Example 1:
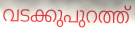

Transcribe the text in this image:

വടക്കുപുറത്ത്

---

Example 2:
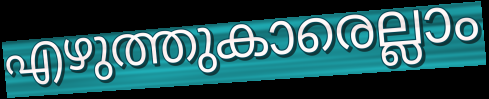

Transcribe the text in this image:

എഴുത്തുകാരെല്ലാം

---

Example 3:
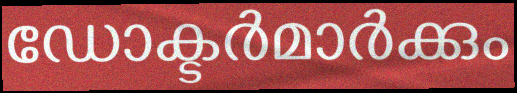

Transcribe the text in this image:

ഡോക്ടർമാർക്കും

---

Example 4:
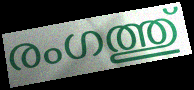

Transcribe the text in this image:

രംഗത്തു്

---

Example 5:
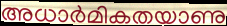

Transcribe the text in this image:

അധാർമികതയാണു